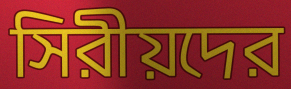
সিরীয়দের